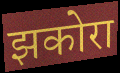
झकोरा